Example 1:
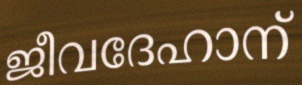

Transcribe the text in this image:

ജീവദേഹാന്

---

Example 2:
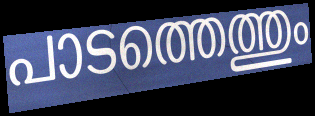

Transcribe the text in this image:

പാടത്തെത്തും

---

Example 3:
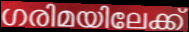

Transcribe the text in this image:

ഗരിമയിലേക്ക്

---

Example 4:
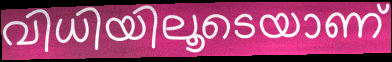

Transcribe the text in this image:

വിധിയിലൂടെയാണ്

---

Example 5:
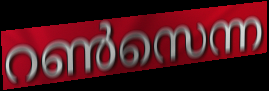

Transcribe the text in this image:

റൺസെന്ന